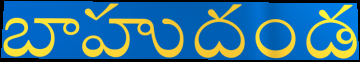
బాహుదండ